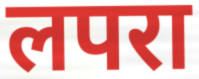
लपरा